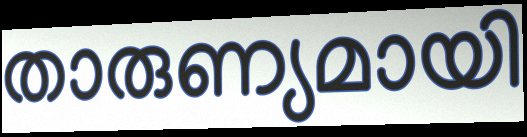
താരുണ്യമായി